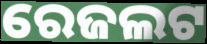
ରେଜଲଟ